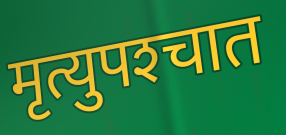
मृत्युपश्‍चात